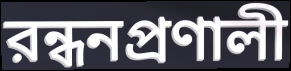
রন্ধনপ্রণালী